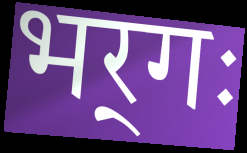
भर्गः